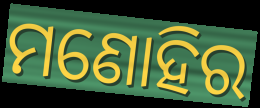
ମଣୋହିର